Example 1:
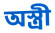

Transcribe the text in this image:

অস্ত্রী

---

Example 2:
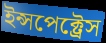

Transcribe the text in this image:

ইন্সপেক্ট্রেস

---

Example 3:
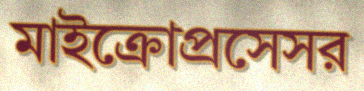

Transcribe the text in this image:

মাইক্রোপ্রসেসর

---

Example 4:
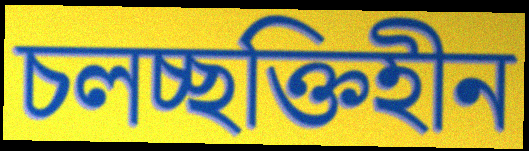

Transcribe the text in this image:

চলচ্ছক্তিহীন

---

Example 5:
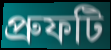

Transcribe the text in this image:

প্রুফটি